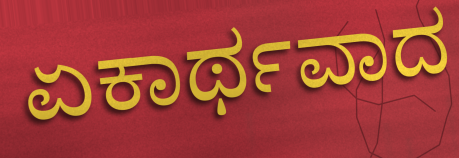
ಏಕಾರ್ಥವಾದ